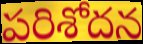
పరిశోదన